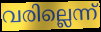
വരില്ലെന്ന്